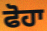
ਫੋਹਾ